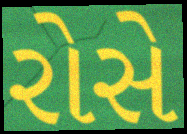
રોસે